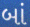
બાં